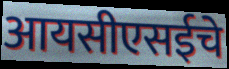
आयसीएसईचे